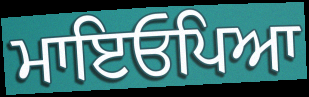
ਮਾਇਓਪਿਆ